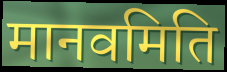
मानवमिति